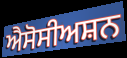
ਐਸੋਸੀਅਸ਼ਨ